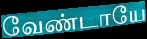
வேண்டாயே